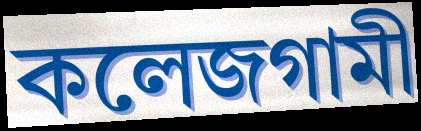
কলেজগামী